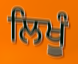
ਲਿਖੂੰ